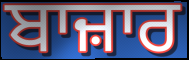
ਬਾਜ਼ਾਰ